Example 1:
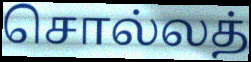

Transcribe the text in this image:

சொல்லத்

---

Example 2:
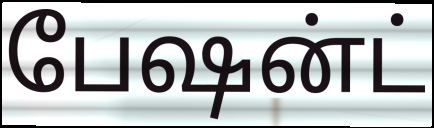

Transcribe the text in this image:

பேஷன்ட்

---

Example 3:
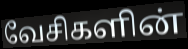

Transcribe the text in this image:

வேசிகளின்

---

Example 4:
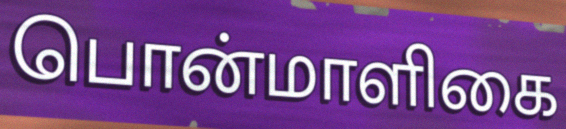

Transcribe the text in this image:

பொன்மாளிகை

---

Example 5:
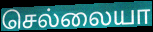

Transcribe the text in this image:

செல்லையா